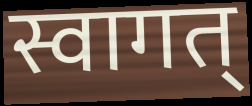
स्वागत्